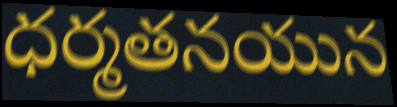
ధర్మతనయున